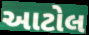
આટોલ